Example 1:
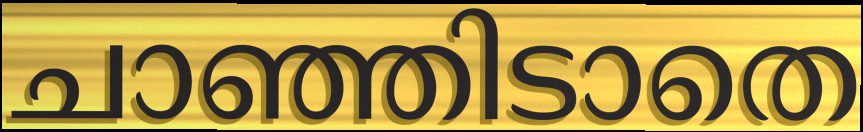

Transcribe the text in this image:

ചാഞ്ഞിടാതെ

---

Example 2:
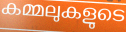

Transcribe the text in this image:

കമ്മലുകളുടെ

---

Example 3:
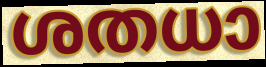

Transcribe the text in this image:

ശതധാ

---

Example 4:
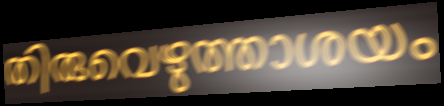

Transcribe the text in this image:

തിരുവെഴുത്താശയം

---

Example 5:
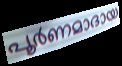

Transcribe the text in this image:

പൂർണമാദായ